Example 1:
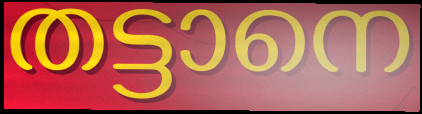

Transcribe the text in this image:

തട്ടാനെ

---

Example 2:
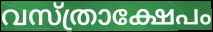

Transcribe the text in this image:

വസ്ത്രാക്ഷേപം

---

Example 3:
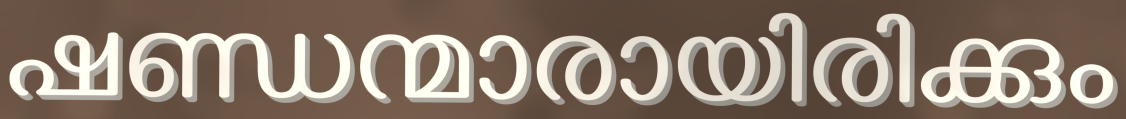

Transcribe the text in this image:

ഷണ്ഡന്മാരായിരിക്കും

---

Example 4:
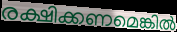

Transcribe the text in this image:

രക്ഷിക്കണമെങ്കിൽ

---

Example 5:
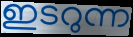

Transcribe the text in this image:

ഇടറുന്ന